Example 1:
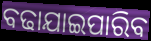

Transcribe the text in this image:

ବଢାଯାଇପାରିବ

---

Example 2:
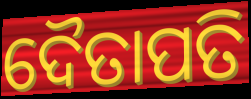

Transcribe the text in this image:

ଦୈତାପତି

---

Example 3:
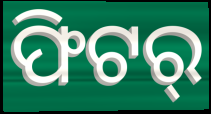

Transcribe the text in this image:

ଫିଟର୍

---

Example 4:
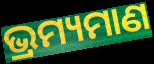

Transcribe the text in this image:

ଭ୍ରମ୍ୟମାଣ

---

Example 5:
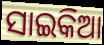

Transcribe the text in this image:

ସାଇକିଆ